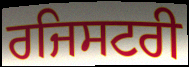
ਰਜਿਸਟਰੀ